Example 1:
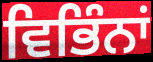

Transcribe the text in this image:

ਵਿਭਿੰਨਾਂ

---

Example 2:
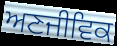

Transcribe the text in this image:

ਅਣਜੀਵਿਕ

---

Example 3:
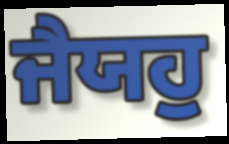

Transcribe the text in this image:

ਜੈਯਹੁ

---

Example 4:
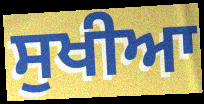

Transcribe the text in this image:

ਸੁਖੀਆ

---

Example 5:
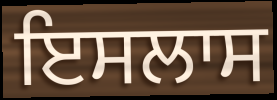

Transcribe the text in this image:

ਇਸਲਾਸ